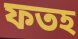
ফতহ